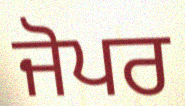
ਜੋਪਰ